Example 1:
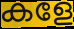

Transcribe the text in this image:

കളേ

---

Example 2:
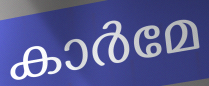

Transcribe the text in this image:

കാർമേ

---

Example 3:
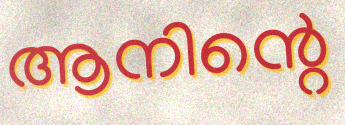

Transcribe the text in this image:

ആനിന്റെ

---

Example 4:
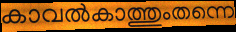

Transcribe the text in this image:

കാവൽകാത്തുംതന്നെ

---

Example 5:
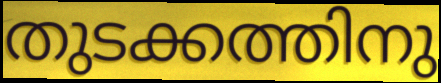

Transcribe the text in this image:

തുടക്കത്തിനു